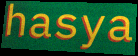
hasya